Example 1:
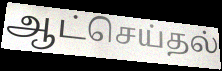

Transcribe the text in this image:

ஆட்செய்தல்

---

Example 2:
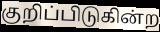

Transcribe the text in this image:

குறிப்பிடுகின்ற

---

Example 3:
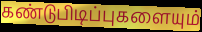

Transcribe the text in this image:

கண்டுபிடிப்புகளையும்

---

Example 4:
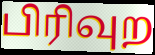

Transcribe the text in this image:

பிரிவுற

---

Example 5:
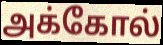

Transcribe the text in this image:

அக்கோல்